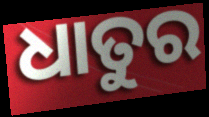
ଧାତୁର